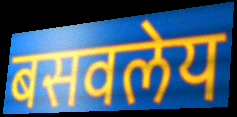
बसवलेय